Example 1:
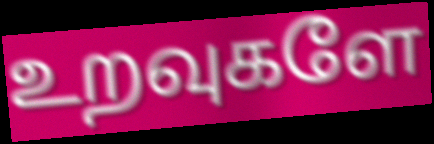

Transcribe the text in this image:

உறவுகளே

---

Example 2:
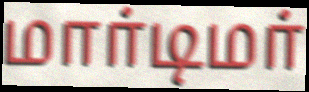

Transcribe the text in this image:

மார்டிமர்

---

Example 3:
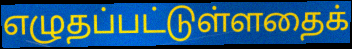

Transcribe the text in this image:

எழுதப்பட்டுள்ளதைக்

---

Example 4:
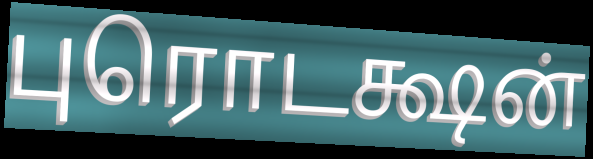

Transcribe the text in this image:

புரொடக்ஷன்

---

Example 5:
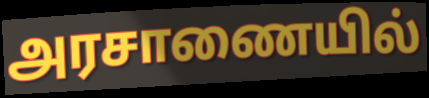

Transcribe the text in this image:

அரசாணையில்